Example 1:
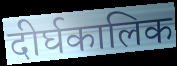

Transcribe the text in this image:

दीर्घकालिक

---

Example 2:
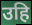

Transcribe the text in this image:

उहि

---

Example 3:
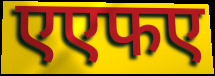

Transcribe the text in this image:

एएफए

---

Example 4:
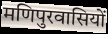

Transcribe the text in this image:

मणिपुरवासियों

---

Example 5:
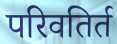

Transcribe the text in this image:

परिवतिर्त